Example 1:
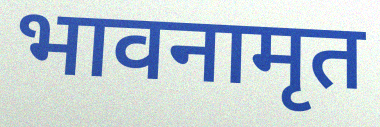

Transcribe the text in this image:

भावनामृत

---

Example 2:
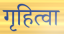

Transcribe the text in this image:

गृहित्वा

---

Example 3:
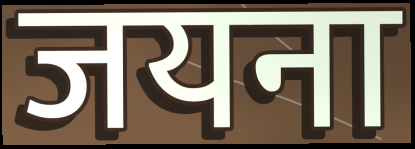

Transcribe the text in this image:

जयना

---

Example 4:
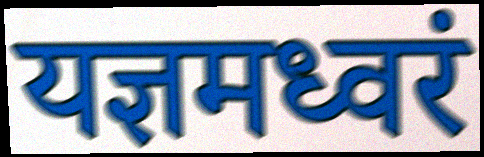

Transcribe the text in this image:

यज्ञमध्वरं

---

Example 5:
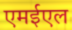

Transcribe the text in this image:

एमईएल